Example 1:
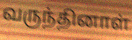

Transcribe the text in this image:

வருந்தினாள்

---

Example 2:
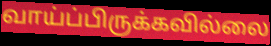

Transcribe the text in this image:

வாய்ப்பிருக்கவில்லை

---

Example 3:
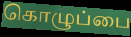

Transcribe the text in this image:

கொழுப்பை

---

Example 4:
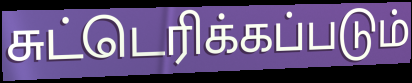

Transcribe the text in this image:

சுட்டெரிக்கப்படும்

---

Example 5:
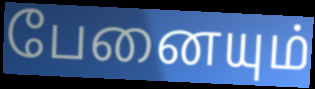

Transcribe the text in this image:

பேனையும்